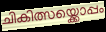
ചികിത്സയ്ക്കൊപ്പം